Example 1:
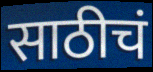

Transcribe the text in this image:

साठीचं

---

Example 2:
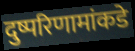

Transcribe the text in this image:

दुष्परिणामांकडे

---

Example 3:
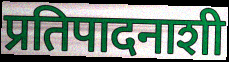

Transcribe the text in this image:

प्रतिपादनाशी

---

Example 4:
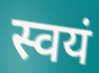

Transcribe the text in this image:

स्वयं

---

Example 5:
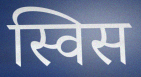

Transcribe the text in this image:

स्विस